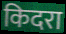
किदरा